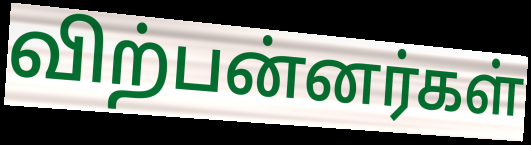
விற்பன்னர்கள்